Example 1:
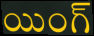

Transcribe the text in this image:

యింగ్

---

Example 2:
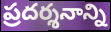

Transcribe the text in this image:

ప్రదర్శనాన్ని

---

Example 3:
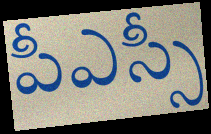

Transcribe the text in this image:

పీఎస్సీ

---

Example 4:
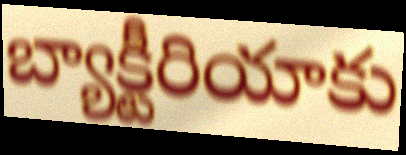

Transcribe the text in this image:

బ్యాక్టీరియాకు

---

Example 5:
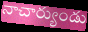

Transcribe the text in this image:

నాచార్యుండు